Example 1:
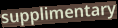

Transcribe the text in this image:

supplimentary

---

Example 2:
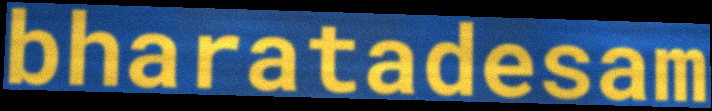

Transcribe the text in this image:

bharatadesam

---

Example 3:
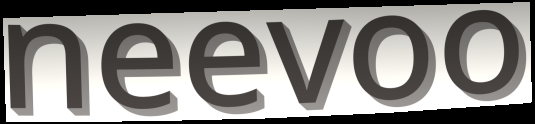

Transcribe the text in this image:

neevoo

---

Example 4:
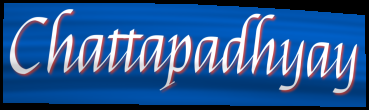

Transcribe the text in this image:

Chattapadhyay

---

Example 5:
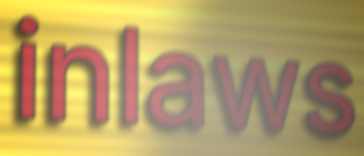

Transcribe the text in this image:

inlaws